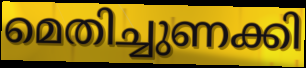
മെതിച്ചുണക്കി